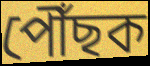
পৌঁছক